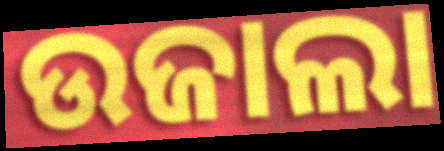
ଉଜାଲା